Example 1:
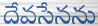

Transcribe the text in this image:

దేవసేనను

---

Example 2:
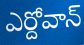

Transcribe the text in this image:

ఎర్దోవాన్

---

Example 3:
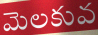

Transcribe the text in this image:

మెలకువ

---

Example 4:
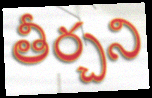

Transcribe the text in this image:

తీర్చని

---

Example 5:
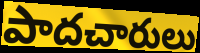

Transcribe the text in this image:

పాదచారులు